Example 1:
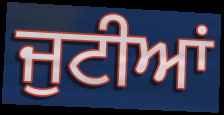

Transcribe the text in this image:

ਜੁਟੀਆਂ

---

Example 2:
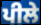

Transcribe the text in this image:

ਪੀਲੇ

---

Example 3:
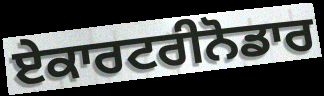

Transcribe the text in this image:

ਏਕਾਰਟਰੀਨੋਡਾਰ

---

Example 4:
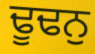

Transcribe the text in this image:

ਢੂਢਨੁ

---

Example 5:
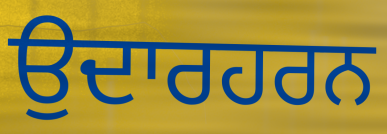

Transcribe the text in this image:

ਉਦਾਰਹਰਨ